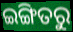
ଇଙ୍ଗିତରୁ